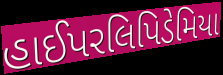
હાઈપરલિપિડેમિયા